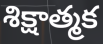
శిక్షాత్మక